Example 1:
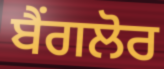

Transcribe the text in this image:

ਬੈਂਗਲੋਰ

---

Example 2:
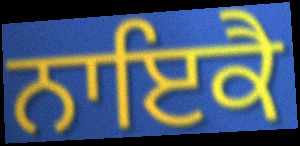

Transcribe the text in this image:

ਨਾਇਕੈ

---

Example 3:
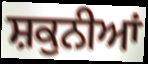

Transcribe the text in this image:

ਸ਼ਕੁਨੀਆਂ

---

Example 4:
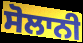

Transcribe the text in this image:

ਸੋਲਾਨੀ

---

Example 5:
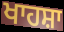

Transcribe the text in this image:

ਖਾਹਸ਼ਾ